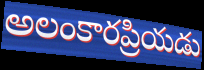
అలంకారప్రియడు